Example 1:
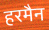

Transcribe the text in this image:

हरमैन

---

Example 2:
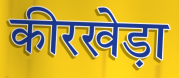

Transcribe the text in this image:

कीरखेड़ा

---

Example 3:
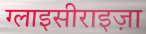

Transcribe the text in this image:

ग्लाइसीराइज़ा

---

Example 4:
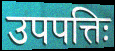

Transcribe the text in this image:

उपपत्तिः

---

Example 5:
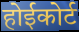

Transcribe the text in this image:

होईकोर्ट